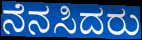
ನೆನಸಿದರು